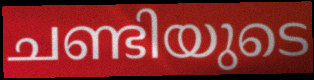
ചണ്ടിയുടെ